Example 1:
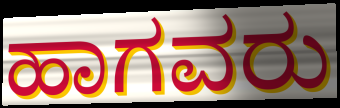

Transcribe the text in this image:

ಹಾಗವರು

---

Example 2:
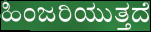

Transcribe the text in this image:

ಹಿಂಜರಿಯುತ್ತದೆ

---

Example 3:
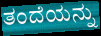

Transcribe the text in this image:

ತಂದೆಯನ್ನು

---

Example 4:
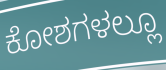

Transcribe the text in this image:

ಕೋಶಗಳಲ್ಲೂ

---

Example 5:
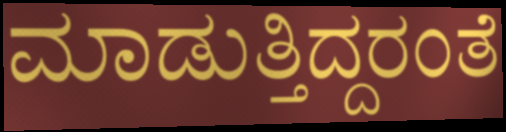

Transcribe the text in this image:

ಮಾಡುತ್ತಿದ್ದರಂತೆ